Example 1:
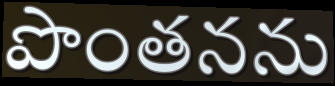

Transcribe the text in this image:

పొంతనను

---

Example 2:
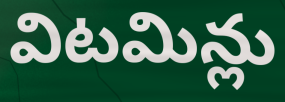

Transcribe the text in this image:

విటమిన్లు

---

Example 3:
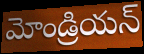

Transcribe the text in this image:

మోండ్రియన్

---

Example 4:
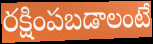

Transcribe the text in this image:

రక్షింపబడాలంటే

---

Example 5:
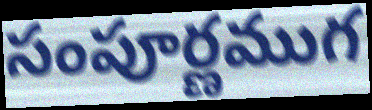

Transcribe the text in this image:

సంపూర్ణముగ